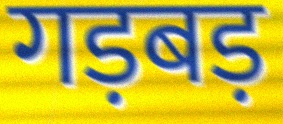
गड़बड़